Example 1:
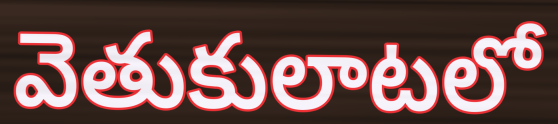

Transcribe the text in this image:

వెతుకులాటలో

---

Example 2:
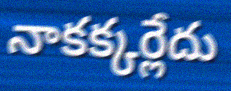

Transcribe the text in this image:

నాకక్కర్లేదు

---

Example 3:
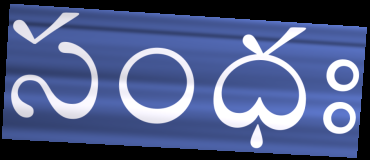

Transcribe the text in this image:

సంధః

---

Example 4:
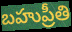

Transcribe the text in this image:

బహుప్రీతి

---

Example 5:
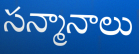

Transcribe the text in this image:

సన్మానాలు